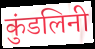
कुंडलिनी